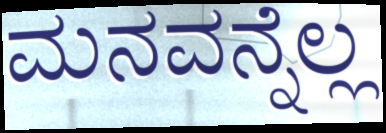
ಮನವನ್ನೆಲ್ಲ